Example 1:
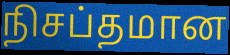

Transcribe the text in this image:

நிசப்தமான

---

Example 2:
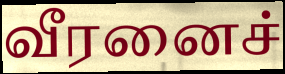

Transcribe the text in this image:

வீரனைச்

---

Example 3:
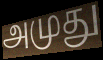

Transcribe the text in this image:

அமுது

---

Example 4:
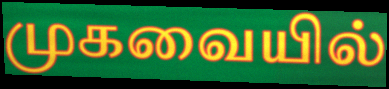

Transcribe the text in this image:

முகவையில்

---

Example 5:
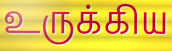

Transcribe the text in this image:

உருக்கிய